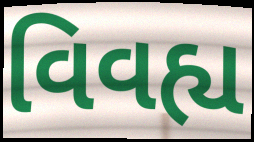
વિવહ્ય